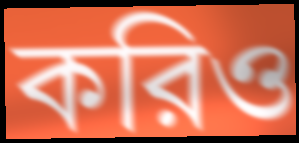
করিও